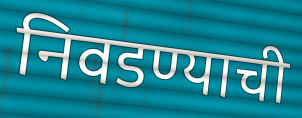
निवडण्याची